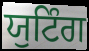
ਯੁਟਿੰਗ